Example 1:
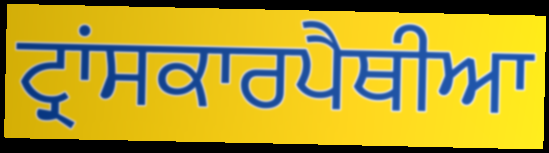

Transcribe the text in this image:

ਟ੍ਰਾਂਸਕਾਰਪੈਥੀਆ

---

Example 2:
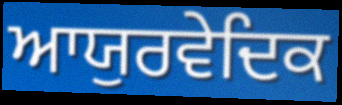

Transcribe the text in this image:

ਆਯੁਰਵੇਦਿਕ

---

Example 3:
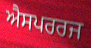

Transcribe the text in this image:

ਐਸਪਰਰਜ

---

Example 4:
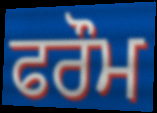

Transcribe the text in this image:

ਫਰੌਮ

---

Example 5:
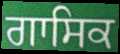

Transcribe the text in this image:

ਗਾਸਿਕ